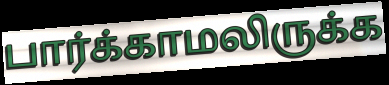
பார்க்காமலிருக்க